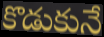
కొడుకునే